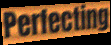
Perfecting